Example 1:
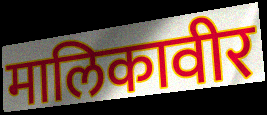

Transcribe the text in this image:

मालिकावीर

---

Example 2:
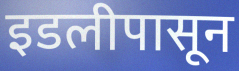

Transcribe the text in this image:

इडलीपासून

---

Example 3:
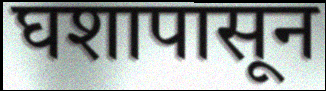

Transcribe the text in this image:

घशापासून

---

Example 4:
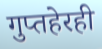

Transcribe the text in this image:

गुप्तहेरही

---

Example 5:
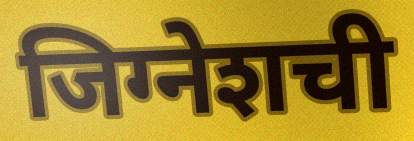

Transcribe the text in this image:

जिग्नेशची